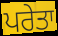
ਪਰੇਤਾ